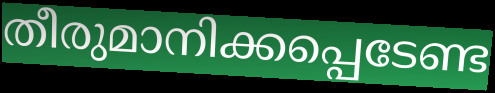
തീരുമാനിക്കപ്പെടേണ്ട